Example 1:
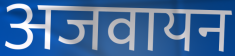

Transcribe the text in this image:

अजवायन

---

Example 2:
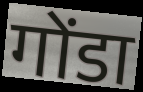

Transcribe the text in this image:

गोंडा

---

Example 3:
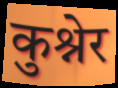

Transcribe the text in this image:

कुश्नेर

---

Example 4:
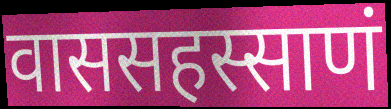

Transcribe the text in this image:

वाससहस्साणं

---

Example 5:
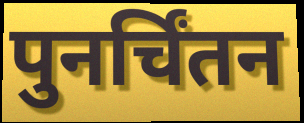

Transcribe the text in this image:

पुनर्चिंतन